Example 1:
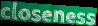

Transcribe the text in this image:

closeness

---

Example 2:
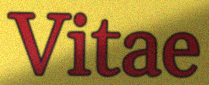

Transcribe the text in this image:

Vitae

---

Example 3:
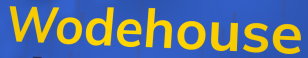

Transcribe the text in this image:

Wodehouse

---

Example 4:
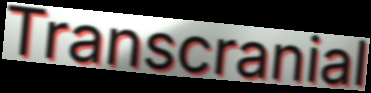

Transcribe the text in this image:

Transcranial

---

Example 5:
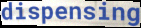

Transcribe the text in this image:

dispensing